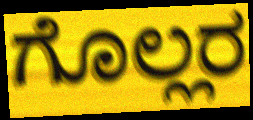
ಗೊಲ್ಲರ